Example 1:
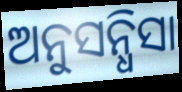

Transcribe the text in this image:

ଅନୁସନ୍ଧିସା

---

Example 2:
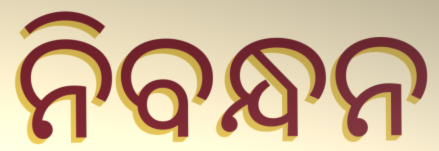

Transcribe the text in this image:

ନିବନ୍ଧନ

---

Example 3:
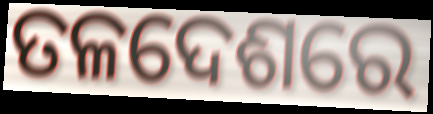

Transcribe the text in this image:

ତଳଦେଶରେ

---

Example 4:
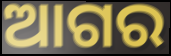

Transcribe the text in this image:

ଆଗର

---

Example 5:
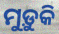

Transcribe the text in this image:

ମୁଡ଼ୁକି